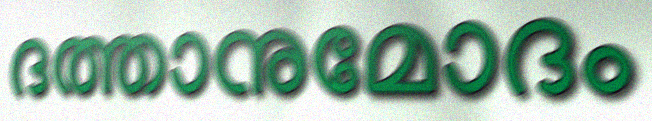
ദത്താനുമോദം